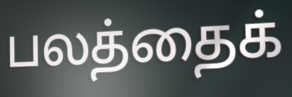
பலத்தைக்